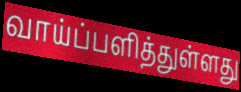
வாய்ப்பளித்துள்ளது